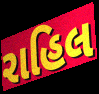
રાહિલ